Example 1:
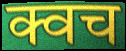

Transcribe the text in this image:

क्वच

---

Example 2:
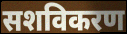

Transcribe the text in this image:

सशविकरण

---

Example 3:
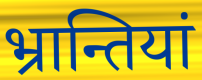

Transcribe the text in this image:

भ्रान्तियां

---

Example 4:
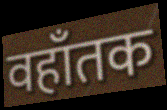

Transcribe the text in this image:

वहाँतक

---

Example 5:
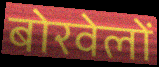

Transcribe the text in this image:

बोरवेलों